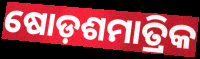
ଷୋଡ଼ଶମାତ୍ରିକ